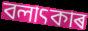
বলাৎকাৰ